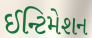
ઈન્ટિમેશન